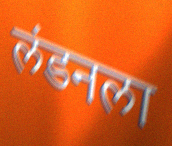
लंडनला